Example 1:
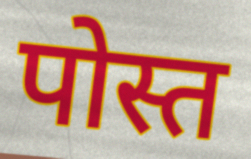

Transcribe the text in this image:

पोस्त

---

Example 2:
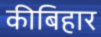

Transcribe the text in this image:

कीबिहार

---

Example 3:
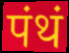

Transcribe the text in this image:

पंथं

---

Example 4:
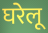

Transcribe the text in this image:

घरेलू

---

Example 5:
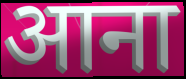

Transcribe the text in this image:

आना